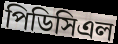
পিডিসিএল